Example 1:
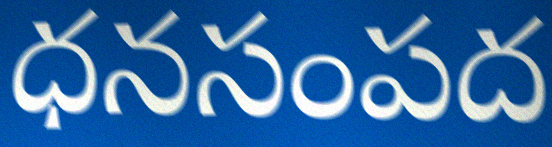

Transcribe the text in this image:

ధనసంపద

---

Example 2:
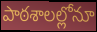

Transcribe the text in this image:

పాఠశాలల్లోనూ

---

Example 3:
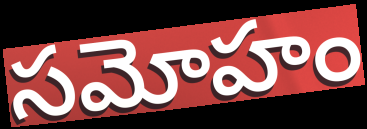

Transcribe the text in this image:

సమోహం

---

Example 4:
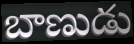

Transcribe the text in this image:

బాణుడు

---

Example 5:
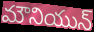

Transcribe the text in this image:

మౌనియున్